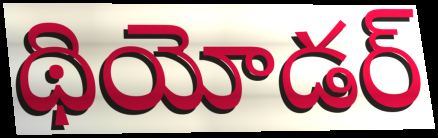
థియోడర్